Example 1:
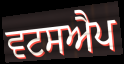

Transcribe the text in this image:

ਵਟਸਐਪ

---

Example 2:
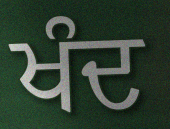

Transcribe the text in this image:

ਖੰਦ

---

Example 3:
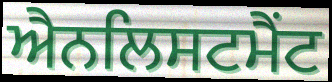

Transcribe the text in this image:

ਐਨਲਿਸਟਮੈਂਟ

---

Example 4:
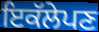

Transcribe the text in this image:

ਇਕੱਲੇਪਣ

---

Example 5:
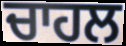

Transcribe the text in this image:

ਚਾਹਲ